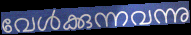
വേൾക്കുന്നവന്നു